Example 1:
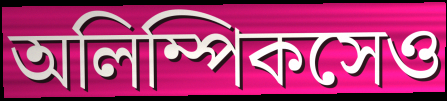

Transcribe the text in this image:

অলিম্পিকসেও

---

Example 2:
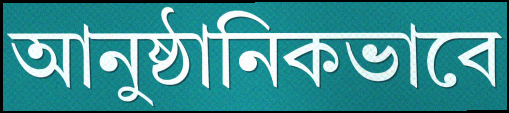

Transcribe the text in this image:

আনুষ্ঠানিকভাবে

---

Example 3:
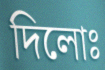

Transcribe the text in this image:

দিলোঃ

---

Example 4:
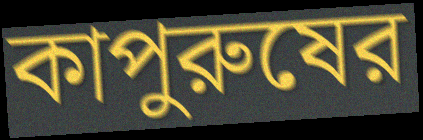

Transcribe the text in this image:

কাপুরুষের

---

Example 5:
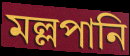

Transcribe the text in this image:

মল্লপানি